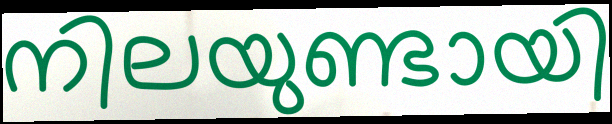
നിലയുണ്ടായി